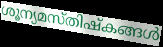
ശൂന്യമസ്തിഷ്കങ്ങൾ